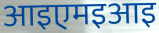
आइएमइआइ